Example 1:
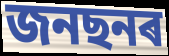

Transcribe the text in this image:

জনছনৰ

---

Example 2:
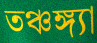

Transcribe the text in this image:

তঞ্চঙ্গ্যা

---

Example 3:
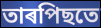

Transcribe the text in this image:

তাৰপিছতে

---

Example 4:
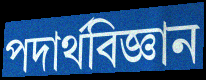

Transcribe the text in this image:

পদাৰ্থবিজ্ঞান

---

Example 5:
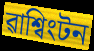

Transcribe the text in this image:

ৱাশ্বিংটন